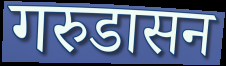
गरुडासन